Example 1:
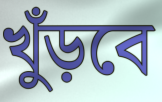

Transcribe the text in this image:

খুঁড়বে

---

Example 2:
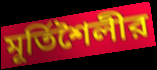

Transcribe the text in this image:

মূর্তিশৈলীর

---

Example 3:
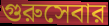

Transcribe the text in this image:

গুরুসেবার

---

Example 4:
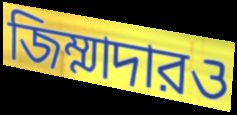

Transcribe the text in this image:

জিম্মাদারও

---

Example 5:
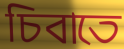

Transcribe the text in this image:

চিবাতে